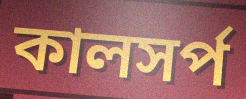
কালসর্প